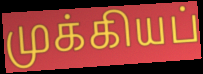
முக்கியப்